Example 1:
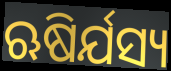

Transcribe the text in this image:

ଋଷିର୍ଯସ୍ୟ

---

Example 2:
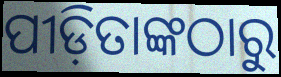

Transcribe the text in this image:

ପୀଡ଼ିତାଙ୍କଠାରୁ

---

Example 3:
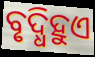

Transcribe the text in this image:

ବୃଦ୍ଧିହୁଏ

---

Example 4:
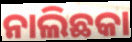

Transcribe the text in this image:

ନାଲିଛକା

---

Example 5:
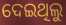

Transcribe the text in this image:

ଦେଇଥିଲୁ